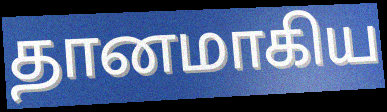
தானமாகிய